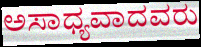
ಅಸಾಧ್ಯವಾದವರು